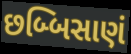
છબ્બિસાણં